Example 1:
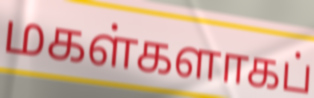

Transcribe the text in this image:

மகள்களாகப்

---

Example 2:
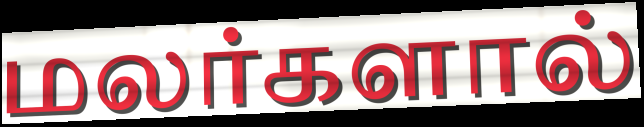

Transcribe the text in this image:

மலர்களால்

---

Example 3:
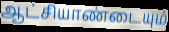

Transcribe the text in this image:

ஆட்சியாண்டையும்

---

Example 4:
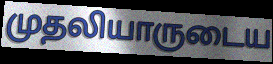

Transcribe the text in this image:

முதலியாருடைய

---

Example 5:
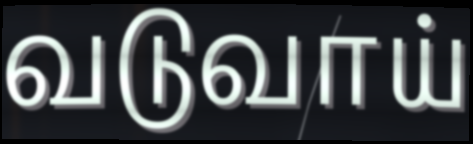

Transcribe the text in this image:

வடுவாய்